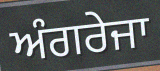
ਅੰਗਰੇਜਾ